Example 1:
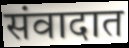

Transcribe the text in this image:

संवादात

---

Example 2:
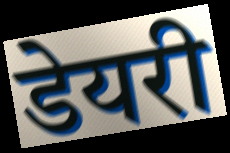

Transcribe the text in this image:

डेयरी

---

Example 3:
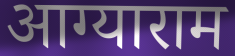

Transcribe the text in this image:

आग्याराम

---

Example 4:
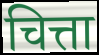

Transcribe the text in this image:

चित्ता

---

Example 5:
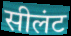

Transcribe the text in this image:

सीलंट